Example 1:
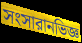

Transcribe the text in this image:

সংসারানভিজ্ঞ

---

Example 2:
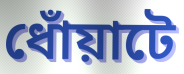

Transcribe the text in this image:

ধোঁয়াটে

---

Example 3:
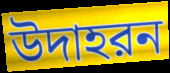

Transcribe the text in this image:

উদাহরন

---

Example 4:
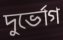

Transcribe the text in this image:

দুর্ভোগ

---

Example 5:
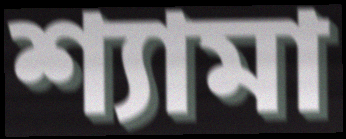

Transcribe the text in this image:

শ্যামা